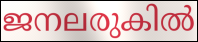
ജനലരുകിൽ